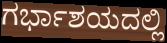
ಗರ್ಭಾಶಯದಲ್ಲಿ